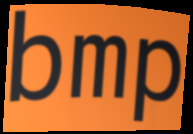
bmp